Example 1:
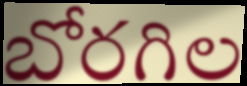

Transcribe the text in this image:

బోరగిల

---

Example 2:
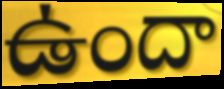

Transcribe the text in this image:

ఉందా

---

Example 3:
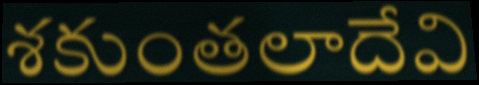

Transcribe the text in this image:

శకుంతలాదేవి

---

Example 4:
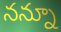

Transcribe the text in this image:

నన్నూ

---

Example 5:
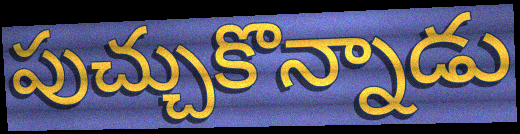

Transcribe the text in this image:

పుచ్చుకొన్నాడు